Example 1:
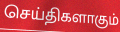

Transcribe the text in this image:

செய்திகளாகும்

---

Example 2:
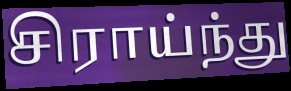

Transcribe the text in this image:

சிராய்ந்து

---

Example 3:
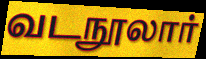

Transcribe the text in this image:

வடநூலார்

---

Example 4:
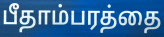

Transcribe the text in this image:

பீதாம்பரத்தை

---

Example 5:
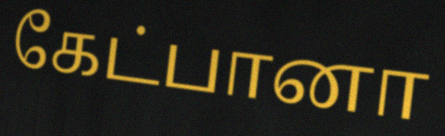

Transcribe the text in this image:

கேட்பானா